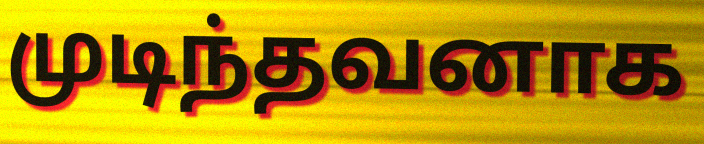
முடிந்தவனாக